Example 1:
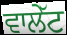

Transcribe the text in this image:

ਵਾਲੇੱਟ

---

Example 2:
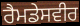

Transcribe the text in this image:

ਰੈਮਡੇਸਵੀਰ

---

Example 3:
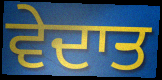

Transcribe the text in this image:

ਵੇਦਾਤ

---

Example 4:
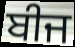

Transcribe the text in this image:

ਬੀਜ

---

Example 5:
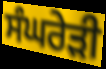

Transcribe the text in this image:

ਸੰਘਰੇੜੀ